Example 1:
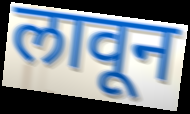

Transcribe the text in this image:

लावून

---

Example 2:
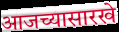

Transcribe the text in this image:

आजच्यासारखे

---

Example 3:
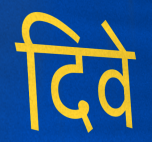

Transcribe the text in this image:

दिवे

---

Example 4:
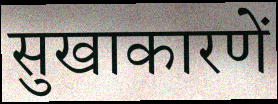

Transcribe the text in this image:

सुखाकारणें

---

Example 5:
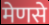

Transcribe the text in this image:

मेणसे